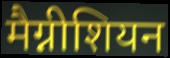
मैग्नीशियन